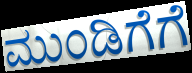
ಮುಂಡಿಗೆಗೆ